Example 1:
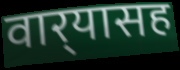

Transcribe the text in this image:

वार्‍यासह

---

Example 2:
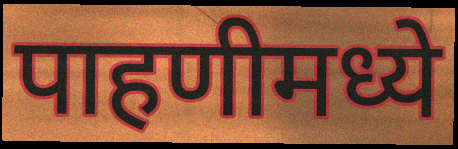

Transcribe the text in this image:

पाहणीमध्ये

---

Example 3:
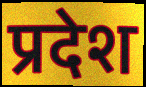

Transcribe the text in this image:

प्रदेश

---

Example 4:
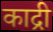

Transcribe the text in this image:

काद्री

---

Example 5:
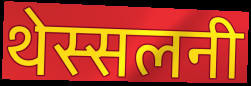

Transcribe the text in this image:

थेस्सलनी